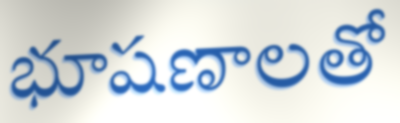
భూషణాలతో